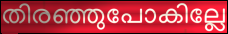
തിരഞ്ഞുപോകില്ലേ